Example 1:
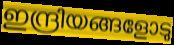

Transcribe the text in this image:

ഇന്ദ്രിയങ്ങളോടു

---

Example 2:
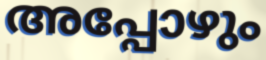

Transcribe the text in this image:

അപ്പോഴും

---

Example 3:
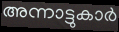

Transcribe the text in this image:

അന്നാട്ടുകാർ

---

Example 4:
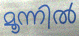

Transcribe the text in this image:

മൂന്നിൽ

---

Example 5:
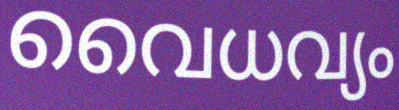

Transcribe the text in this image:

വൈധവ്യം